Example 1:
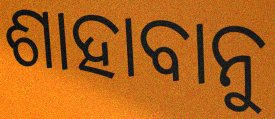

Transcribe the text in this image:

ଶାହାବାନୁ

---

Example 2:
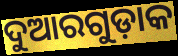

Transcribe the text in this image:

ଦୁଆରଗୁଡ଼ାକ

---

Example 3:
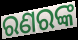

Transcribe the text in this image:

ରଣରଙ୍କ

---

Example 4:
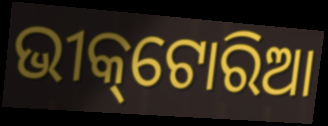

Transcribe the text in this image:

ଭୀକ୍‌ଟୋରିଆ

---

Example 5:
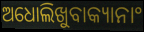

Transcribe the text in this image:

ଅଧୋଲିଖୁବାକ୍ୟାନାଂ